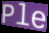
Ple